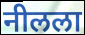
नीलला